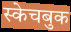
स्केचबुक